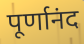
पूर्णानंद